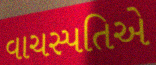
વાચસ્પતિએ